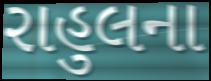
રાહુલના